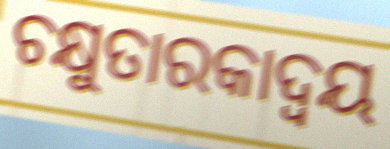
ଚକ୍ଷୁତାରକାଦ୍ଵୟ